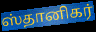
ஸ்தானிகர்